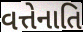
વત્તેનાતિ